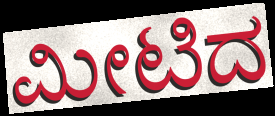
ಮೀಟಿದ